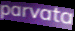
parvata